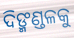
ଦିଙ୍ମଣ୍ଡଳକୁ